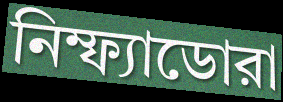
নিম্ফ্যাডোরা